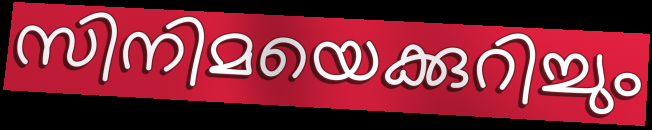
സിനിമയെക്കുറിച്ചും